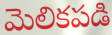
మెలికపడి